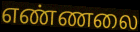
எண்ணலை